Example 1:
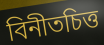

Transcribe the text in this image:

বিনীতচিত্ত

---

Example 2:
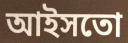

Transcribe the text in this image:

আইসতো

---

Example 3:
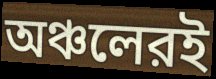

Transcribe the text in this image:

অঞ্চলেরই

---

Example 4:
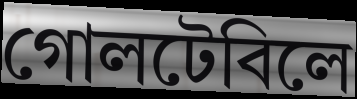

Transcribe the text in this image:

গোলটেবিলে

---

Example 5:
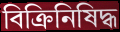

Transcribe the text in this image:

বিক্রিনিষিদ্ধ